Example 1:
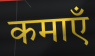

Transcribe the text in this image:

कमाएँ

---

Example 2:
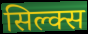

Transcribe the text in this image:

सिल्क्स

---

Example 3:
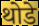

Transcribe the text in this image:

थोडे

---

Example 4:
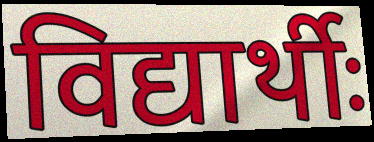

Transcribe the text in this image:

विद्यार्थीः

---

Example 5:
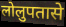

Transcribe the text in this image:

लोलुपतासे